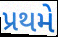
પ્રથમે